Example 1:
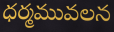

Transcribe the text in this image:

ధర్మమువలన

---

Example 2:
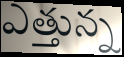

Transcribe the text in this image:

ఎత్తున్న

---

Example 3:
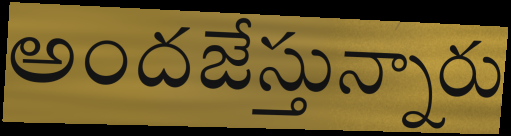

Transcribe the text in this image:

అందజేస్తున్నారు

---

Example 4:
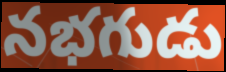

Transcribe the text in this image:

నభగుడు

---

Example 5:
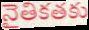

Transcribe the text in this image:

నైతికతకు